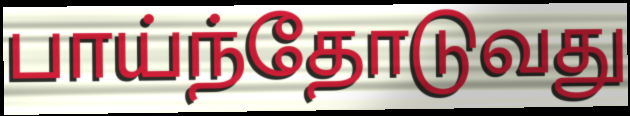
பாய்ந்தோடுவது